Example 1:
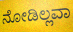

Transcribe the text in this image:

ನೋಡಿಲ್ಲವಾ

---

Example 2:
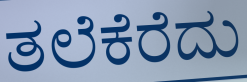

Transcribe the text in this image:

ತಲೆಕೆರೆದು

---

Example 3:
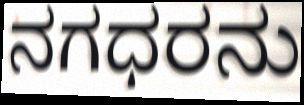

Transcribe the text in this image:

ನಗಧರನು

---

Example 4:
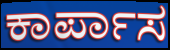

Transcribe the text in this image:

ಕಾರ್ಪಾಸ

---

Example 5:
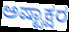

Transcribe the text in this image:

ಅಷ್ಟಾಕ್ಷರ